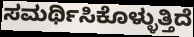
ಸಮರ್ಥಿಸಿಕೊಳ್ಳುತ್ತಿದೆ